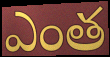
ఎంత